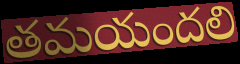
తమయందలి